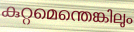
കുറ്റമെന്തെങ്കിലും